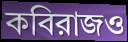
কবিরাজও